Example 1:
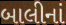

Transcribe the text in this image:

બાલીનાં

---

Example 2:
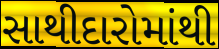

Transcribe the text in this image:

સાથીદારોમાંથી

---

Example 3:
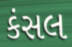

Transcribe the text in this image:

કંસલ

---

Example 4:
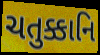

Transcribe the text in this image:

ચતુક્કાનિ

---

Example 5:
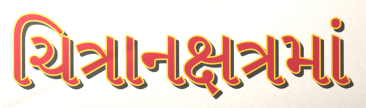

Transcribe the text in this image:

ચિત્રાનક્ષત્રમાં